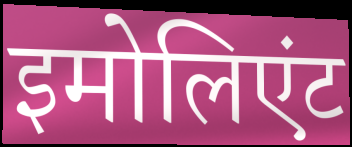
इमोलिएंट